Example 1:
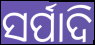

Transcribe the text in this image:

ସର୍ପାଦି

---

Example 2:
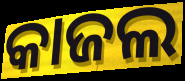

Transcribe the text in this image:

କାଜଲ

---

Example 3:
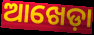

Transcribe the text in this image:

ଆଖେଡ଼ା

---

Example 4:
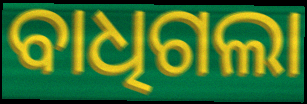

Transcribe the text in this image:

ବାଧିଗଲା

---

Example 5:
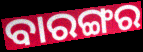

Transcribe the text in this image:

ବାରଙ୍ଗର